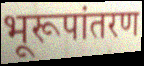
भूरूपांतरण